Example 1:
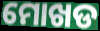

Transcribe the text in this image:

ମୋଖଡ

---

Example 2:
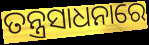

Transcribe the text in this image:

ତନ୍ତ୍ରସାଧନାରେ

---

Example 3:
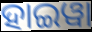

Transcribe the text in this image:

ହାଇୱା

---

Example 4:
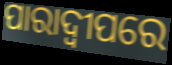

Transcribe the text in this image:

ପାରାଦ୍ବୀପରେ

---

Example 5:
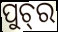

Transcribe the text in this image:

ପୁଚ୍‍ର